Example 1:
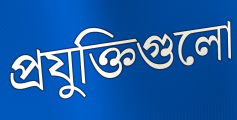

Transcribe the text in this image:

প্রযুক্তিগুলো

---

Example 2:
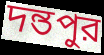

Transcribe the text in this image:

দন্তপুর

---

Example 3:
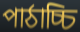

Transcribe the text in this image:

পাঠাচ্চি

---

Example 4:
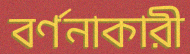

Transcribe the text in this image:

বর্ণনাকারী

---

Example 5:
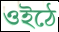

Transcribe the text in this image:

ওইঠে